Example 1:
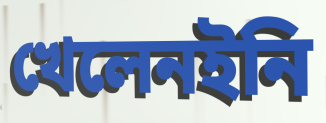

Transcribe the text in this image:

খেলেনইনি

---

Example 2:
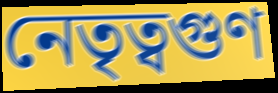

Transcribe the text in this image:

নেতৃত্বগুণ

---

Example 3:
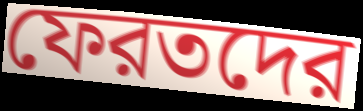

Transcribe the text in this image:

ফেরতদের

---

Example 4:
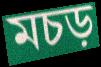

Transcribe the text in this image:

মচড়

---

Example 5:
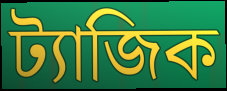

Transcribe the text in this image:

ট্যাজিক